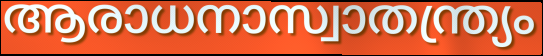
ആരാധനാസ്വാതന്ത്ര്യം